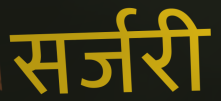
सर्जरी